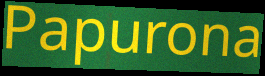
Papurona